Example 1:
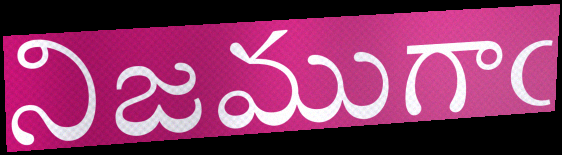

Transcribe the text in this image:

నిజముగాఁ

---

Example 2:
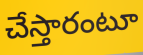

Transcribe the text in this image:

చేస్తారంటూ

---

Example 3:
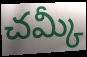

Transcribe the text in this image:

చమ్కీ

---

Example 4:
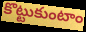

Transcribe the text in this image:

కొట్టుకుంటాం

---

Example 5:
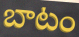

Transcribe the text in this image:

బాటం